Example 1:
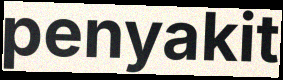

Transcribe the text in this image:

penyakit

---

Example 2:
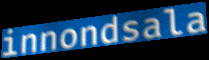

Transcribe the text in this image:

innondsala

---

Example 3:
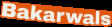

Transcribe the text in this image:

Bakarwals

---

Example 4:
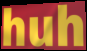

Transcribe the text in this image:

huh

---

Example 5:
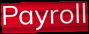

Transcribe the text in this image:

Payroll